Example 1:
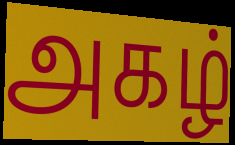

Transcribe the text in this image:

அகழ்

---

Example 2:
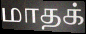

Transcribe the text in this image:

மாதக்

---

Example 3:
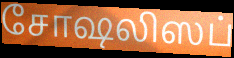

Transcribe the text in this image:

சோஷலிஸப்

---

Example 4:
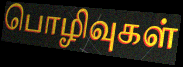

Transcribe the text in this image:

பொழிவுகள்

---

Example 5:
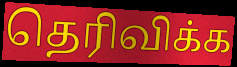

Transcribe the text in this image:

தெரிவிக்க